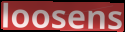
loosens